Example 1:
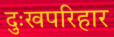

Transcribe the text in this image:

दुःखपरिहार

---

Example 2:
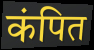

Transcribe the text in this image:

कंपित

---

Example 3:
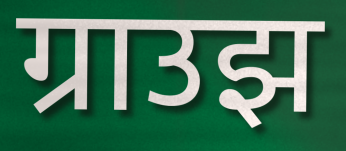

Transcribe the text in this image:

ग्राउझ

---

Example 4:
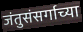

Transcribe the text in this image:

जंतुसंसर्गाच्या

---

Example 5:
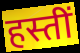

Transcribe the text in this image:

हस्तीं